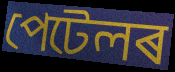
পেটেলৰ